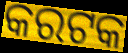
କରଟକ